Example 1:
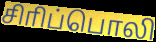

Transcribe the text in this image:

சிரிப்பொலி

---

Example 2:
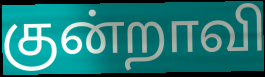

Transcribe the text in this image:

குன்றாவி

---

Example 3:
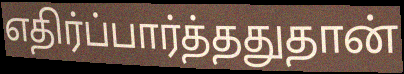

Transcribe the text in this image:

எதிர்ப்பார்த்ததுதான்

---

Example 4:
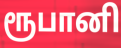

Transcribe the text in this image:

ரூபானி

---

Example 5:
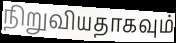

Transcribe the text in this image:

நிறுவியதாகவும்